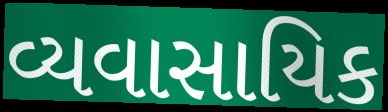
વ્યવાસાયિક